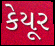
કેયૂર